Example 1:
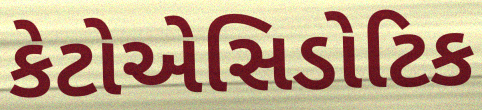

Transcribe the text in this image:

કેટોએસિડોટિક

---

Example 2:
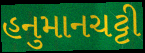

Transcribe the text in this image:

હનુમાનચટ્ટી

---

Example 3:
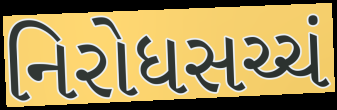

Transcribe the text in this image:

નિરોધસચ્ચં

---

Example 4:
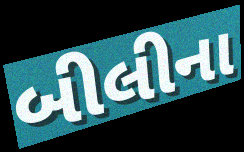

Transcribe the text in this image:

બીલીના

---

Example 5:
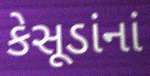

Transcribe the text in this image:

કેસૂડાંનાં